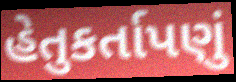
હેતુકર્તાપણું